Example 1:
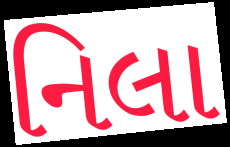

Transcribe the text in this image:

નિલા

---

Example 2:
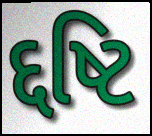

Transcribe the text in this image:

દ્દષ્ટિ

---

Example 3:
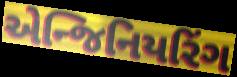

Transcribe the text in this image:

એન્જિનિયરિંગ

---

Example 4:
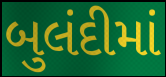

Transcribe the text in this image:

બુલંદીમાં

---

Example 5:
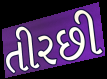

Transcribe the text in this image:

તીરછી